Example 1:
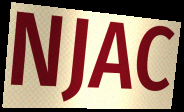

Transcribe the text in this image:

NJAC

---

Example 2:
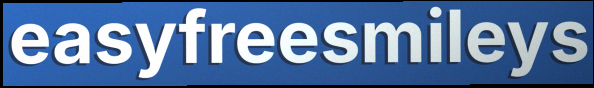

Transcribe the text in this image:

easyfreesmileys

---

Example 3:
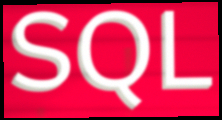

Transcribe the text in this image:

SQL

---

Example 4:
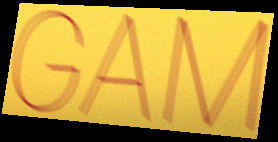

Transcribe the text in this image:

GAM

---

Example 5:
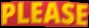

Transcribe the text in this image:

PLEASE